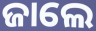
ଜାଲେ